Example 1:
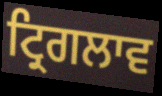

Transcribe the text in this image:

ਟ੍ਰਿਗਲਾਵ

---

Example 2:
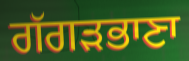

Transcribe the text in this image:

ਗੱਗੜਭਾਣਾ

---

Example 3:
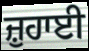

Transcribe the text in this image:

ਜ਼ੁਹਾਈ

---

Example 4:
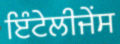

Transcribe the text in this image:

ਇੰਟੇਲੀਜੇੰਸ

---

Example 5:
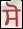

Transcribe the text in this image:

ਸੋ